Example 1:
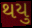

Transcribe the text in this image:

થયુ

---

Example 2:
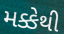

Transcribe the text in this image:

મક્કેથી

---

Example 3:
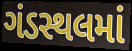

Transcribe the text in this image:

ગંડસ્થલમાં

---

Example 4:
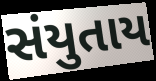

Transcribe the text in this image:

સંયુતાય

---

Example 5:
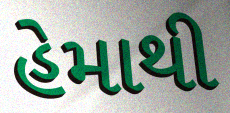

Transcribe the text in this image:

હેમાથી